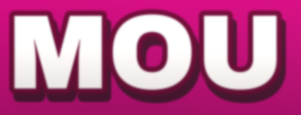
MOU